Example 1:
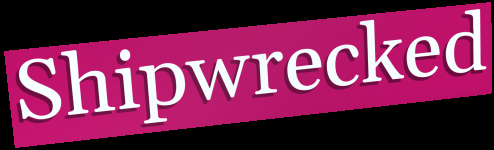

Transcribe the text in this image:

Shipwrecked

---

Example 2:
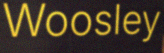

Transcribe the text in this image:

Woosley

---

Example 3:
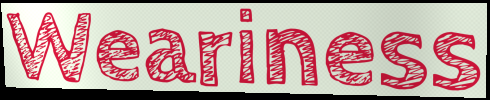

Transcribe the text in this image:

Weariness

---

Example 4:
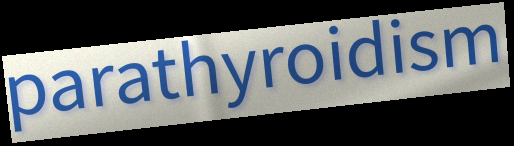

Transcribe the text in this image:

parathyroidism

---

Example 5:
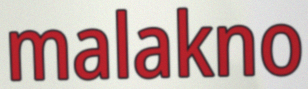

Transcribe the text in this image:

malakno